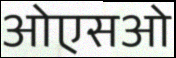
ओएसओ